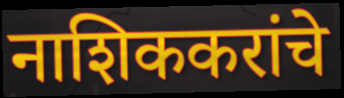
नाशिककरांचे